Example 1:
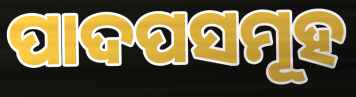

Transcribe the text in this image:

ପାଦପସମୂହ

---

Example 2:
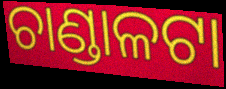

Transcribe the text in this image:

ଚାଣ୍ଡାଳଟା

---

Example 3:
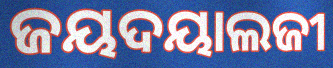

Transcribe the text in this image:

ଜୟଦୟାଲଜୀ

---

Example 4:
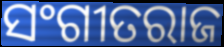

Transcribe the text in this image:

ସଂଗୀତରାଜ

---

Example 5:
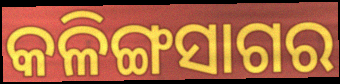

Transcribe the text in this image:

କଳିଙ୍ଗସାଗର